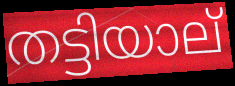
തട്ടിയാല്